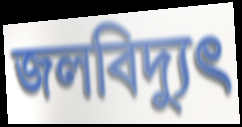
জলবিদ্যুৎ